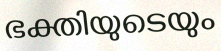
ഭക്തിയുടെയും